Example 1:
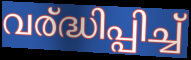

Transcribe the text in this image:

വര്ദ്ധിപ്പിച്ച്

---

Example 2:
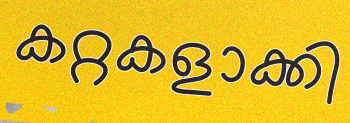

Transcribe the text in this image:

കറ്റകളാക്കി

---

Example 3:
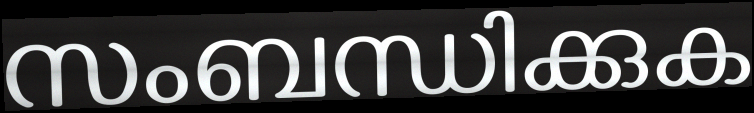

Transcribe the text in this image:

സംബന്ധിക്കുക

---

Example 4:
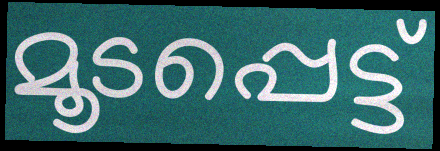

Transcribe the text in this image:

മൂടപ്പെട്ട്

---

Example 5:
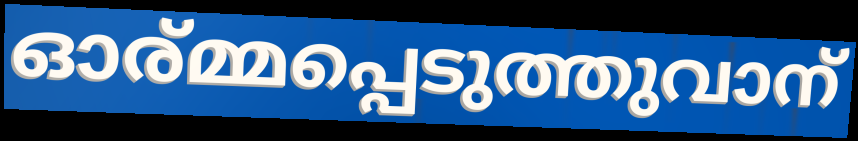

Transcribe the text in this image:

ഓര്മ്മപ്പെടുത്തുവാന്